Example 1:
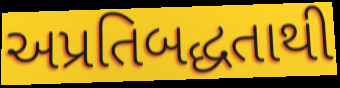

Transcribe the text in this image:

અપ્રતિબદ્ધતાથી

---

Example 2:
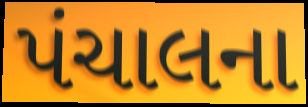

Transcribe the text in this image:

પંચાલના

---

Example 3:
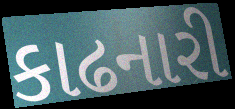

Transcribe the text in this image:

કાઢનારી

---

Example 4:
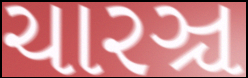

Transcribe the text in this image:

ચારઞ્ચ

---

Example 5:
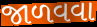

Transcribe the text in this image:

જાળવવા